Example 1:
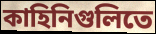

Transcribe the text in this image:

কাহিনিগুলিতে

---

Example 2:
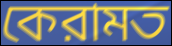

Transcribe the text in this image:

কেরামত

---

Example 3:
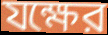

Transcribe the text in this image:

যক্ষের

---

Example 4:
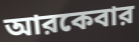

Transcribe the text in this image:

আরকেবার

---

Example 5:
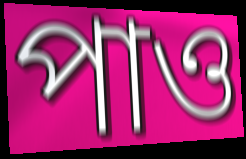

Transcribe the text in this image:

পাও